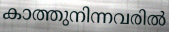
കാത്തുനിന്നവരിൽ